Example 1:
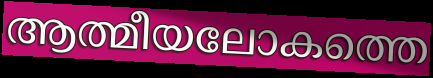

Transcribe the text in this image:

ആത്മീയലോകത്തെ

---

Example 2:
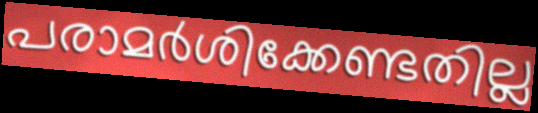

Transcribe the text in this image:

പരാമർശിക്കേണ്ടതില്ല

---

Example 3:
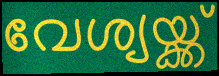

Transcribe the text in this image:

വേശ്യയ്ക്ക്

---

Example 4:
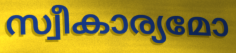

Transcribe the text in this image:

സ്വീകാര്യമോ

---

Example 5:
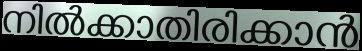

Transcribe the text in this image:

നിൽക്കാതിരിക്കാൻ